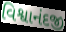
વિશ્વાનંદજી